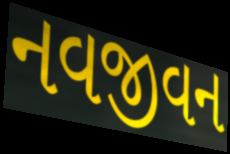
નવજીવન